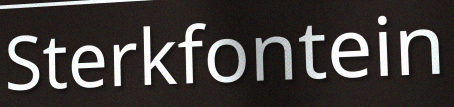
Sterkfontein